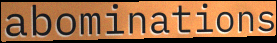
abominations